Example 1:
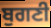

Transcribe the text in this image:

ਬੁਗਣੀ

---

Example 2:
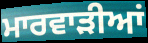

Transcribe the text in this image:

ਮਾਰਵਾੜੀਆਂ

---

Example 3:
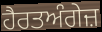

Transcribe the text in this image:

ਹੈਰਤਅੰਗੇਜ਼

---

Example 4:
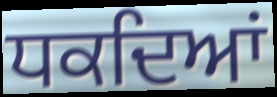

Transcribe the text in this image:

ਧਕਦਿਆਂ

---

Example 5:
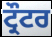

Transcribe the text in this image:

ਟ੍ਰੌਟਰ